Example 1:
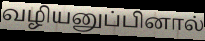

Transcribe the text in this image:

வழியனுப்பினால்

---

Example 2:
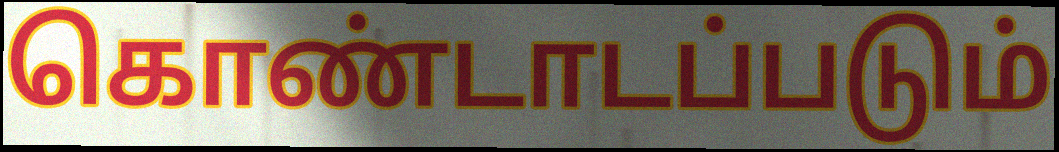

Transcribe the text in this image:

கொண்டாடப்படும்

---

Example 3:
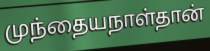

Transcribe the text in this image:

முந்தையநாள்தான்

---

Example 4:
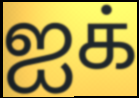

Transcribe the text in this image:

ஐக்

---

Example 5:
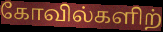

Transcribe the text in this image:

கோவில்களிற்